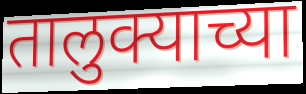
तालुक्याच्या